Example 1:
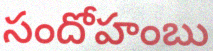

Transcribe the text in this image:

సందోహంబు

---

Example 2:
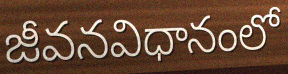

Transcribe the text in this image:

జీవనవిధానంలో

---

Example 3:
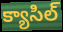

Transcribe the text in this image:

క్యాసిల్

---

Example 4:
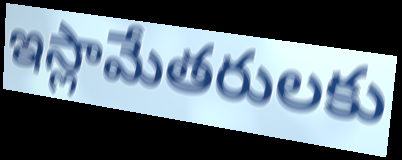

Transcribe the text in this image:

ఇస్లామేతరులకు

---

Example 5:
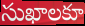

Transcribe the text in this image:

సుఖాలకూ